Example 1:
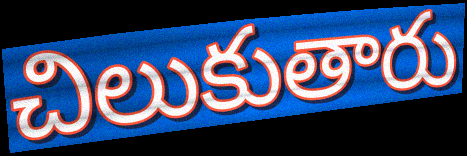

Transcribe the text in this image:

చిలుకుతారు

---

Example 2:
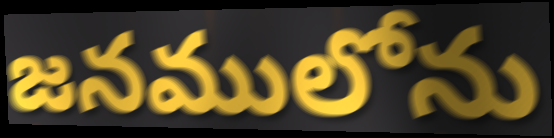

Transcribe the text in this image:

జనములోను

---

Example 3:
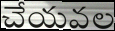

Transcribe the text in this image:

చేయవల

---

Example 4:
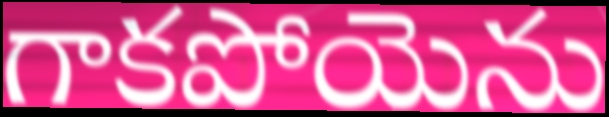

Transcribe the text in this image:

గాకపోయెను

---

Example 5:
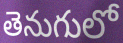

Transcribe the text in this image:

తెనుగులో